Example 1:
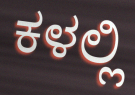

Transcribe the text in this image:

ಕಳಲ್ಲಿ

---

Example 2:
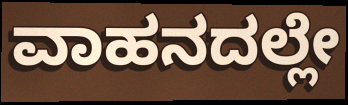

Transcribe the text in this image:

ವಾಹನದಲ್ಲೇ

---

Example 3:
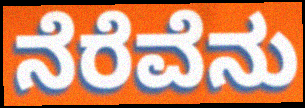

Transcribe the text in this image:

ನೆರೆವೆನು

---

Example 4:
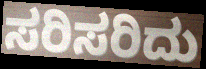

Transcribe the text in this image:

ಸರಿಸರಿದು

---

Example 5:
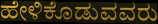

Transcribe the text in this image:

ಹೇಳಿಕೊಡುವವರು